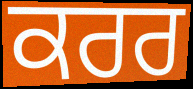
ਕਰਰ